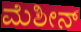
ಮೆಶೀನ್